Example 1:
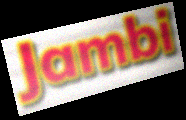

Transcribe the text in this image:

Jambi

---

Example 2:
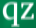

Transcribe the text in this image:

qz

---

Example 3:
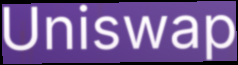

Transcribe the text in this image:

Uniswap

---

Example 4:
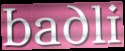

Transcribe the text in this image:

badli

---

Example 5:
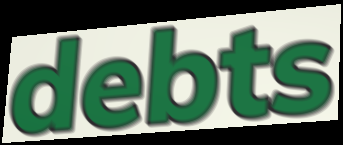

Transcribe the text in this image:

debts